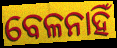
ବେଳନାହିଁ